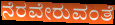
ನೆರವೇರುವಂತೆ